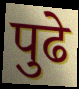
पुढे